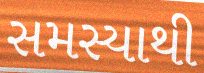
સમસ્યાથી